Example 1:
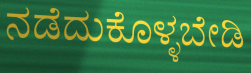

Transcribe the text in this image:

ನಡೆದುಕೊಳ್ಳಬೇಡಿ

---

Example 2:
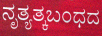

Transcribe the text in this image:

ನೃತ್ಯತ್ಕಬಂಧದ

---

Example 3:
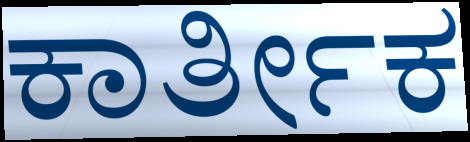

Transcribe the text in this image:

ಕಾರ್ತೀಕ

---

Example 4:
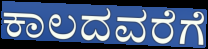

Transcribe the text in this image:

ಕಾಲದವರೆಗೆ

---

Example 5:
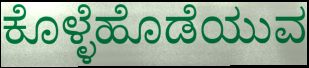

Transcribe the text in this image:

ಕೊಳ್ಳೆಹೊಡೆಯುವ